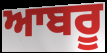
ਆਬਰੂ